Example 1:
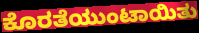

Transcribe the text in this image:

ಕೊರತೆಯುಂಟಾಯಿತು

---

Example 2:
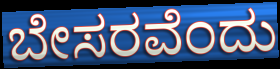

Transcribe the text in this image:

ಬೇಸರವೆಂದು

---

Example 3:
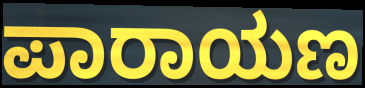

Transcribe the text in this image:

ಪಾರಾಯಣ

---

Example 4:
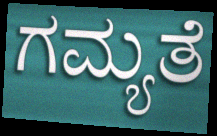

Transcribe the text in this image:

ಗಮ್ಯತೆ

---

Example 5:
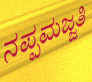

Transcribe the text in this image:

ನಪ್ಪಮಜ್ಜತಿ